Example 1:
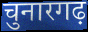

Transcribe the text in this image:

चुनारगढ़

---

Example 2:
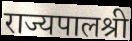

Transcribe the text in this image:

राज्यपालश्री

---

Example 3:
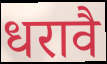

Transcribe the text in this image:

धरावै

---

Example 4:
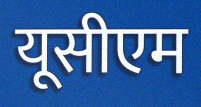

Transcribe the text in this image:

यूसीएम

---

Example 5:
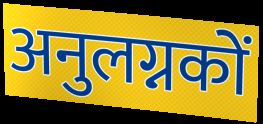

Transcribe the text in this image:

अनुलग्नकों